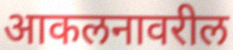
आकलनावरील